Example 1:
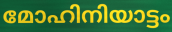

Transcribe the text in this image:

മോഹിനിയാട്ടം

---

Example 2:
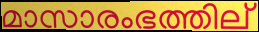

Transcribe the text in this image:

മാസാരംഭത്തില്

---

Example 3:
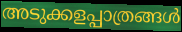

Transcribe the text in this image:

അടുക്കളപ്പാത്രങ്ങൾ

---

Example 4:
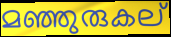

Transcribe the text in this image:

മഞ്ഞുരുകല്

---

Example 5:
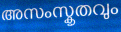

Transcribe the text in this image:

അസംസ്കൃതവും